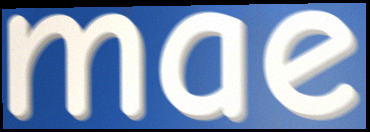
mae